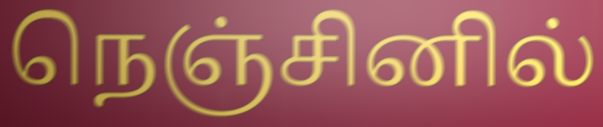
நெஞ்சினில்